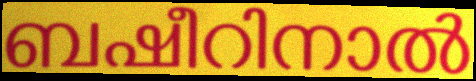
ബഷീറിനാൽ